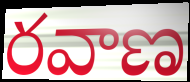
రవాణ